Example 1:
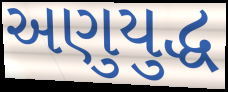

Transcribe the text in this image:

અણુયુદ્ધ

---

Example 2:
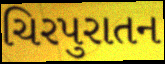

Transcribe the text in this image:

ચિરપુરાતન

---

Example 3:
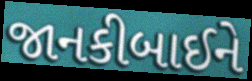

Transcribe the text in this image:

જાનકીબાઈને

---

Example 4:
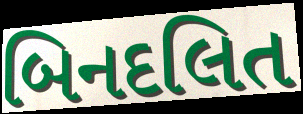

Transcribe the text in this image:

બિનદલિત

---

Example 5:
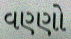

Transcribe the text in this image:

વણ્ણો